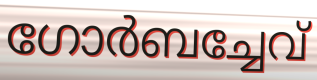
ഗോർബച്ചേവ്